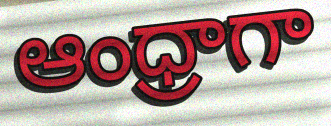
ఆంధ్రాగా